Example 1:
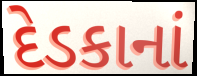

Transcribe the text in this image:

દેડકાનાં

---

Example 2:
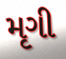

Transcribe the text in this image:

મૃગી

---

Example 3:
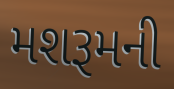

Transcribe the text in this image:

મશરૂમની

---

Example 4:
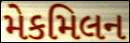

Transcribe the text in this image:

મેકમિલન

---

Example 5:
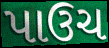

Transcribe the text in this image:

પાઉચ